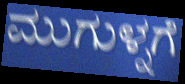
ಮುಗುಳ್ನಗೆ